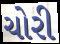
ચોરી